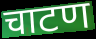
चाटण